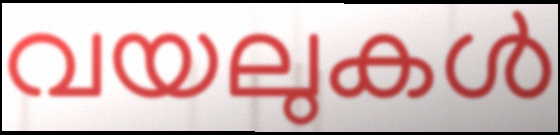
വയലുകൾ